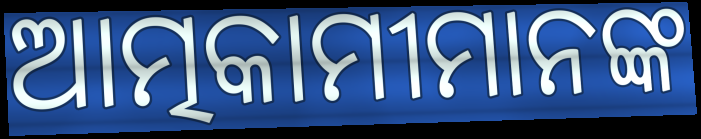
ଆତ୍ମକାମୀମାନଙ୍କ